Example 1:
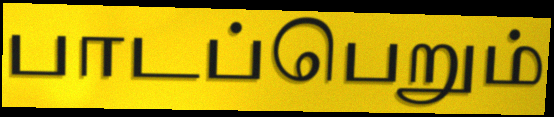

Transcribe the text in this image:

பாடப்பெறும்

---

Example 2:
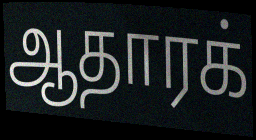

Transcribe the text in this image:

ஆதாரக்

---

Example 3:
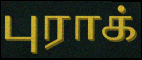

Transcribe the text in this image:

புராக்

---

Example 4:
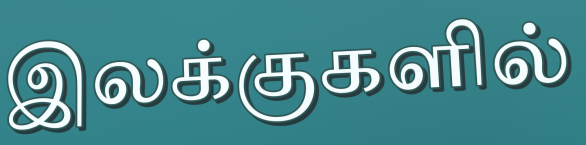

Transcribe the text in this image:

இலக்குகளில்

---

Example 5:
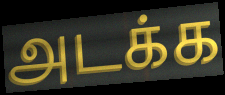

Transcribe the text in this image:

அடக்க